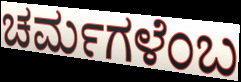
ಚರ್ಮಗಳೆಂಬ